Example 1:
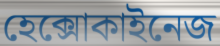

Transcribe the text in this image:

হেক্সোকাইনেজ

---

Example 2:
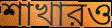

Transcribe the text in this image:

শাখারও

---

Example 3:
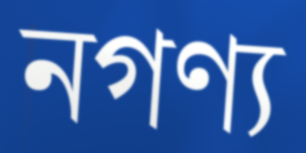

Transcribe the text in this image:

নগণ্য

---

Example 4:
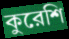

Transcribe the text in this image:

কুরেশি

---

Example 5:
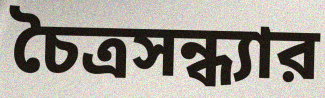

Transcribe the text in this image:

চৈত্রসন্ধ্যার